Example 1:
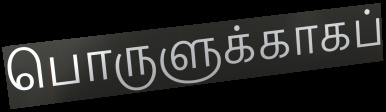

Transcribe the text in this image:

பொருளுக்காகப்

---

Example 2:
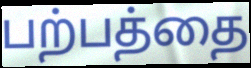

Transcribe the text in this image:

பற்பத்தை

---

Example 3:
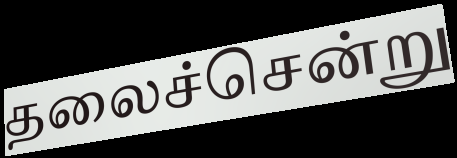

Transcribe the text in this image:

தலைச்சென்று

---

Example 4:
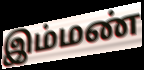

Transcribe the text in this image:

இம்மண்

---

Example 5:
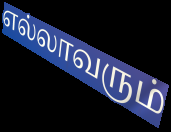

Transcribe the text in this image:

எல்லாவரும்